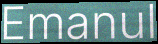
Emanul